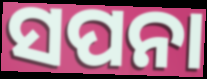
ସପନା